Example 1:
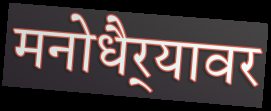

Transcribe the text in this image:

मनोधैर्यावर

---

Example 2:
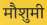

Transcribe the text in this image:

मौशुमी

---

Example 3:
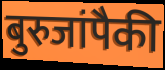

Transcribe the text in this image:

बुरुजांपैकी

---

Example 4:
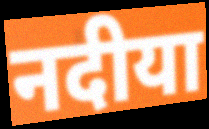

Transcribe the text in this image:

नदीया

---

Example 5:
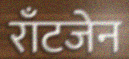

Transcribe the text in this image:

राँटजेन